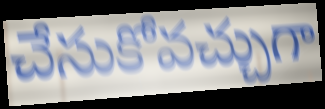
చేసుకోవచ్చుగా